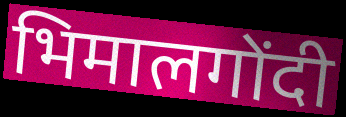
भिमालगोंदी